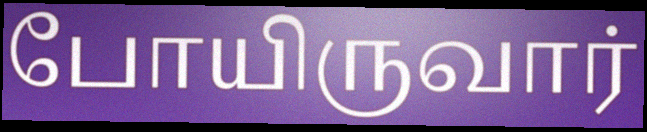
போயிருவார்